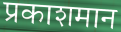
प्रकाशमान